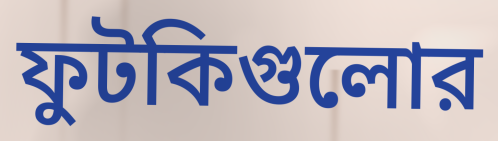
ফুটকিগুলোর